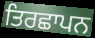
ਤਿਰਛਾਪਨ